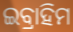
ଇବ୍ରାହିମ